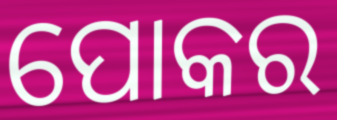
ପୋକର